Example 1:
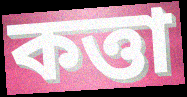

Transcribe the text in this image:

কত্তা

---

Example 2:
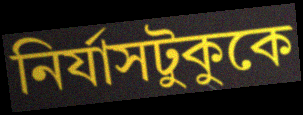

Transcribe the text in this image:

নির্যাসটুকুকে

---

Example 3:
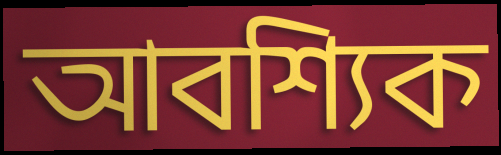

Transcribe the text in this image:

আবশ্যিক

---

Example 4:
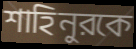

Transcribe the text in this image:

শাহিনুরকে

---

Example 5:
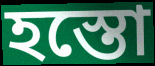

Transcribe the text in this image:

হস্তো